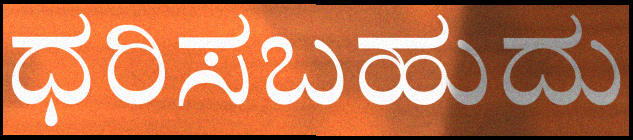
ಧರಿಸಬಹುದು